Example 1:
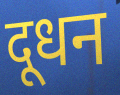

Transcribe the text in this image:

दूधन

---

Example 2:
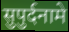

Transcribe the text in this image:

सुपुर्दनामे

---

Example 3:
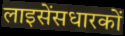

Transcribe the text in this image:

लाइसेंसधारकों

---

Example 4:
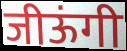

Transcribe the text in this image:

जीऊंगी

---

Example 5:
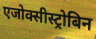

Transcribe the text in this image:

एजोक्सीस्ट्रोबिन